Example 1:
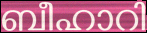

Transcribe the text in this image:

ബീഹാറി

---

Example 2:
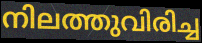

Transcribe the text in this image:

നിലത്തുവിരിച്ച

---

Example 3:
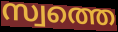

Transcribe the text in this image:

സ്വത്തെ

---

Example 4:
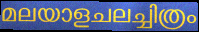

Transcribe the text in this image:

മലയാളചലച്ചിത്രം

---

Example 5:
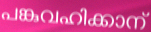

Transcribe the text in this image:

പങ്കുവഹിക്കാന്